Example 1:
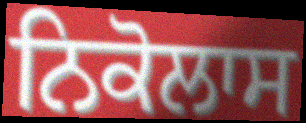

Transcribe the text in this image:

ਨਿਕੋਲਾਸ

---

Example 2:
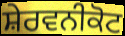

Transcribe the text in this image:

ਸ਼ੇਰਵਨੀਕੋਟ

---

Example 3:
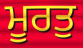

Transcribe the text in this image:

ਮੂਰਤੁ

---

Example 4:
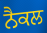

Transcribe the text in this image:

ਨੈਕਲ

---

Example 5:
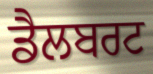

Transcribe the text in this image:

ਡੈਲਬਰਟ